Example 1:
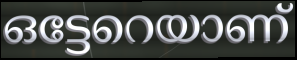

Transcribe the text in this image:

ഒട്ടേറെയാണ്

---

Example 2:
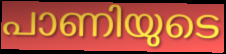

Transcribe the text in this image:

പാണിയുടെ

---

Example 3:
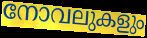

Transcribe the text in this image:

നോവലുകളും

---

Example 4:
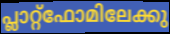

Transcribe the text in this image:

പ്ലാറ്റ്ഫോമിലേക്കു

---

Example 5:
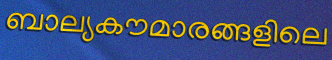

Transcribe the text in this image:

ബാല്യകൗമാരങ്ങളിലെ